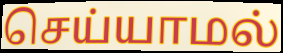
செய்யாமல்